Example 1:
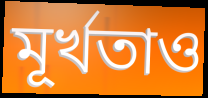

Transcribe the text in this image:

মূর্খতাও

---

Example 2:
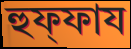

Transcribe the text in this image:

হুফ্ফায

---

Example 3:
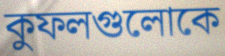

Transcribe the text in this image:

কুফলগুলোকে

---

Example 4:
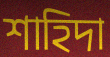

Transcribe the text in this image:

শাহিদা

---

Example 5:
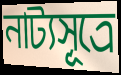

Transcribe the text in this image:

নাট্যসূত্রে